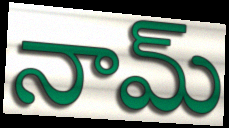
నామ్